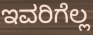
ಇವರಿಗೆಲ್ಲ